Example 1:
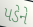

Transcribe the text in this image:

પડેને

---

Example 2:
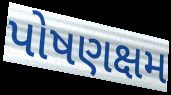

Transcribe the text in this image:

પોષણક્ષમ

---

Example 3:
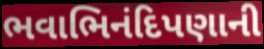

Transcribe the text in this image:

ભવાભિનંદિપણાની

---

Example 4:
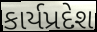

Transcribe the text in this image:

કાર્યપ્રદેશ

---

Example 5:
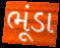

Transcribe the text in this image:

ભૂંડા